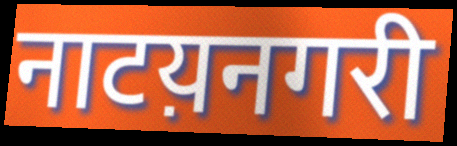
नाटय़नगरी